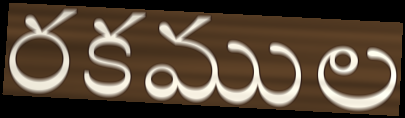
రకముల